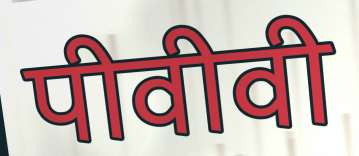
पीवीवी